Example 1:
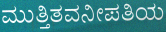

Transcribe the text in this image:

ಮುತ್ತಿತವನೀಪತಿಯ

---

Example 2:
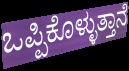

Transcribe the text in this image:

ಒಪ್ಪಿಕೊಳ್ಳುತ್ತಾನೆ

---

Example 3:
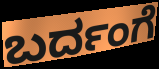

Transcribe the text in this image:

ಬರ್ದಂಗೆ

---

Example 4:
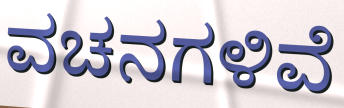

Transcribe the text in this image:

ವಚನಗಳಿವೆ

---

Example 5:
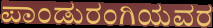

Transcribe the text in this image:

ಪಾಂಡುರಂಗಿಯವರ